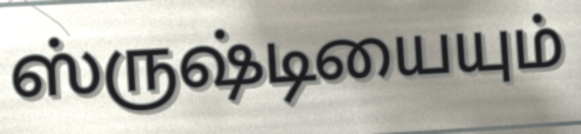
ஸ்ருஷ்டியையும்